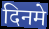
दिनमे